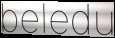
beledu